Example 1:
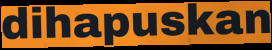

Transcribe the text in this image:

dihapuskan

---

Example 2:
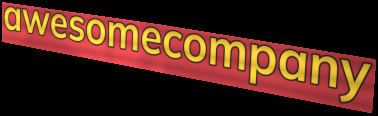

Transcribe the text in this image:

awesomecompany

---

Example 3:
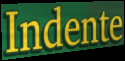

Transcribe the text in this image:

Indente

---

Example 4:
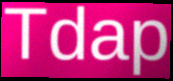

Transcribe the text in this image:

Tdap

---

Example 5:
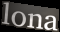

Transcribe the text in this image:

lona